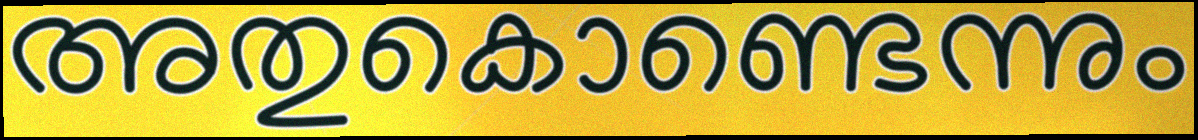
അതുകൊണ്ടെന്നും